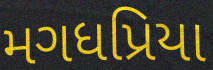
મગધપ્રિયા